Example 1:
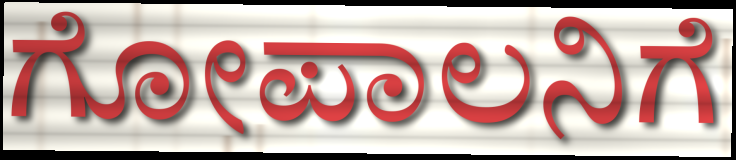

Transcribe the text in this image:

ಗೋಪಾಲನಿಗೆ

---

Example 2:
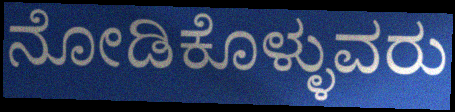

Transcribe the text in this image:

ನೋಡಿಕೊಳ್ಳುವರು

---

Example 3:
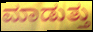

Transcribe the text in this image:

ಮಾಡುತ್ತು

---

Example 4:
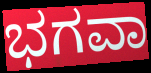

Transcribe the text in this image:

ಭಗವಾ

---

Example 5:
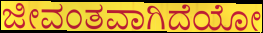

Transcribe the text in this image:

ಜೀವಂತವಾಗಿದೆಯೋ